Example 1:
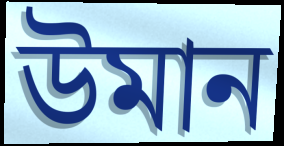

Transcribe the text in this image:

উমান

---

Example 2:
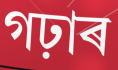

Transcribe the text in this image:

গঢ়াৰ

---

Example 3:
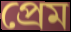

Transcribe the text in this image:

প্ৰেম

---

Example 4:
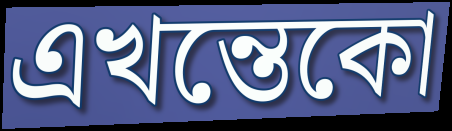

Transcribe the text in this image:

এখন্তেকো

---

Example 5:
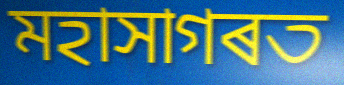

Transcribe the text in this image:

মহাসাগৰত